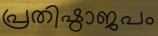
പ്രതിഷ്ഠാജപം